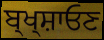
ਬ੍ਖ੍ਸ਼ਾਓਣ